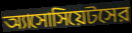
অ্যাসোসিয়েটসের